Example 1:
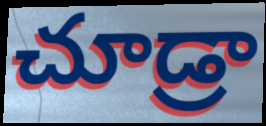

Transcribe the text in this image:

చూడ్రా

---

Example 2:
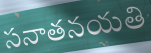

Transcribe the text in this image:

సనాతనయతి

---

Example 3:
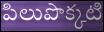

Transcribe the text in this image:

పిలుపొక్కటి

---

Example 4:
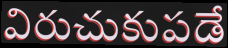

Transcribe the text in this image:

విరుచుకుపడే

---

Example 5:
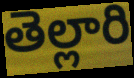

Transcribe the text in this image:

తెల్లారి